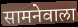
सामनेवाला